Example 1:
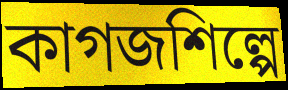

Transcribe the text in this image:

কাগজশিল্পে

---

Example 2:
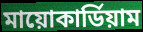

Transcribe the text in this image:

মায়োকার্ডিয়াম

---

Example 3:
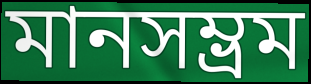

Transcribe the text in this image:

মানসম্ভ্রম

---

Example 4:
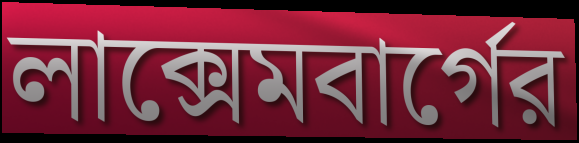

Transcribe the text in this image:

লাক্সেমবার্গের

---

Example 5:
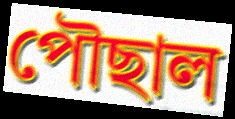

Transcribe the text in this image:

পৌছাল